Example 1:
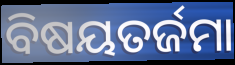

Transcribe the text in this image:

ବିଷୟତର୍ଜମା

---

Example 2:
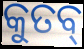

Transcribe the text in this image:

କୁତବ୍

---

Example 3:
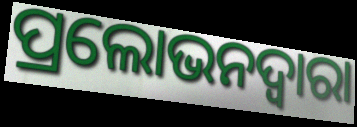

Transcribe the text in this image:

ପ୍ରଲୋଭନଦ୍ୱାରା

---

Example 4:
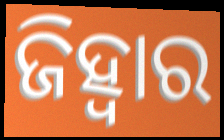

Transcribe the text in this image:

ଜିହ୍ଵାର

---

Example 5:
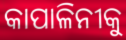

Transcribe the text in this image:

କାପାଳିନୀକୁ